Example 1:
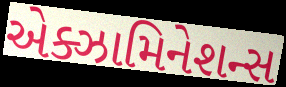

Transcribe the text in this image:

એક્ઝામિનેશન્સ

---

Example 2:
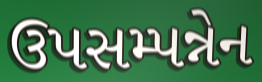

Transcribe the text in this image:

ઉપસમ્પન્નેન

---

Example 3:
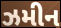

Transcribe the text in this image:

ઝમીન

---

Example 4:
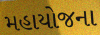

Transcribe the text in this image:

મહાયોજના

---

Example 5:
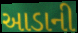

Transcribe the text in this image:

આડાની